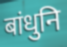
बांधुनि